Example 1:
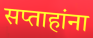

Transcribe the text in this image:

सप्ताहांना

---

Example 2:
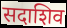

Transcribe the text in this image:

सदाशिव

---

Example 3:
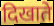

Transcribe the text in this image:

दिखाते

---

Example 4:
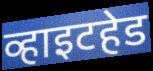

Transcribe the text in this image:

व्हाइटहेड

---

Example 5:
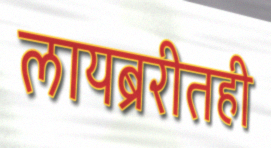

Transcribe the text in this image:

लायब्ररीतही